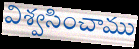
విశ్వసించాము